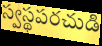
స్వస్థపరచుడి